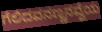
ಗೆಲಿದವನಣ್ಣನವ್ವೆಯ